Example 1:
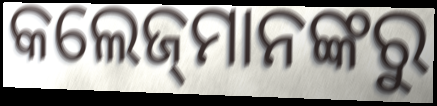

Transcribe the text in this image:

କଲେଜ୍‌ମାନଙ୍କରୁ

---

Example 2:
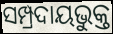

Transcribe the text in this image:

ସମ୍ପ୍ରଦାୟଭୁକ୍ତ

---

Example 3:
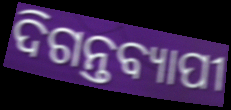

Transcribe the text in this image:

ଦିଗନ୍ତବ୍ୟାପୀ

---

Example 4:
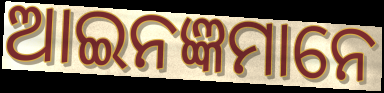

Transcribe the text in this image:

ଆଇନଜ୍ଞମାନେ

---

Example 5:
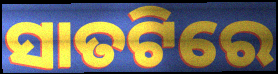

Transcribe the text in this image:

ସାତଟିରେ